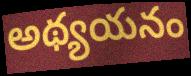
అథ్యయనం